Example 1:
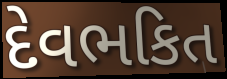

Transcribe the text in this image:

દેવભકિત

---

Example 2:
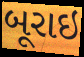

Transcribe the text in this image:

બૂરાઇ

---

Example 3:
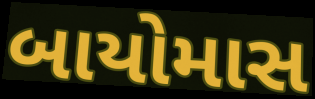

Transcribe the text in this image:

બાયોમાસ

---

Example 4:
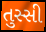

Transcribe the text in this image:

તુસ્સી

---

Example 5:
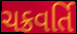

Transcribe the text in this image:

ચક્રવર્તિ